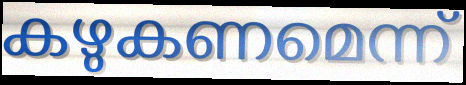
കഴുകണമെന്ന്